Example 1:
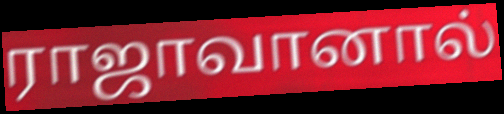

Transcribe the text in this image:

ராஜாவானால்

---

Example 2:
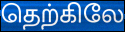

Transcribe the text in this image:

தெற்கிலே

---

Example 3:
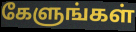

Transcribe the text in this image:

கேளுங்கள்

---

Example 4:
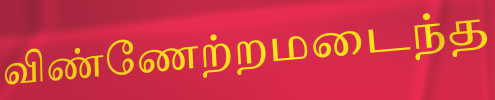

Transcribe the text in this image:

விண்ணேற்றமடைந்த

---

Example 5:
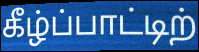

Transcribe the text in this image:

கீழ்ப்பாட்டிற்